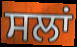
ਸਲਾਂ